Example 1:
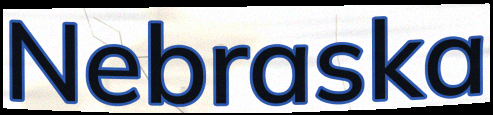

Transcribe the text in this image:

Nebraska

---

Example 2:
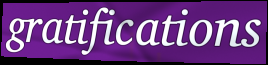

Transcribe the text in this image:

gratifications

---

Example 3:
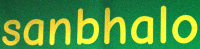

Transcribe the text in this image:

sanbhalo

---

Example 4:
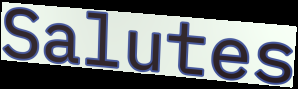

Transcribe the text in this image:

Salutes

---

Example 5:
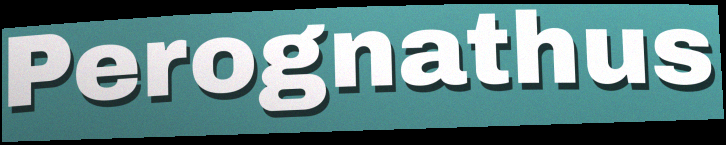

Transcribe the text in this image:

Perognathus